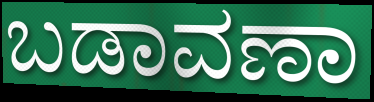
ಬಡಾವಣಾ